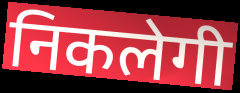
निकलेगी